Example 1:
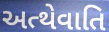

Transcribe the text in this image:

અત્થેવાતિ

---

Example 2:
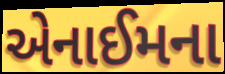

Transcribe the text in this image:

એનાઈમના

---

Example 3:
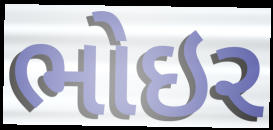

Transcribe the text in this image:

ભોઇર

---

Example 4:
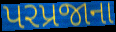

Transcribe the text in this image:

પરપ્રજાના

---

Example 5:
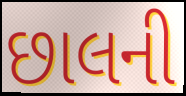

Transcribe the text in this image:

છાલની